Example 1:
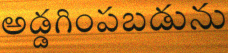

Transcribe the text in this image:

అడ్డగింపబడును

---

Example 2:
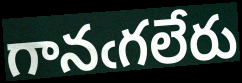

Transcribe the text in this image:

గానఁగలేరు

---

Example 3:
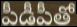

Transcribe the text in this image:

పీడీపీతో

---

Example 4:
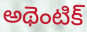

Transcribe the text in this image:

అథెంటిక్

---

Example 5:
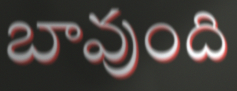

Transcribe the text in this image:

బావుంది